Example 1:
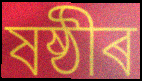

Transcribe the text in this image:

ষষ্ঠীৰ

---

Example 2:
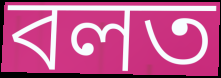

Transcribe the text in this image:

বলত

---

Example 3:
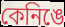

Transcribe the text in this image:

কেনিঙে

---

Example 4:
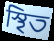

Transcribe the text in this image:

স্থিত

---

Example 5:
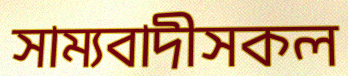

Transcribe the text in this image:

সাম্যবাদীসকল